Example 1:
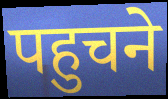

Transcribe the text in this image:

पहुचने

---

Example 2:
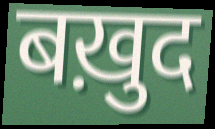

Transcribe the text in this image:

बख़ुद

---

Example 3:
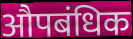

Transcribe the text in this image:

औपबंधिक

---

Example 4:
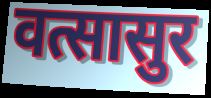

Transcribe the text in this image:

वत्सासुर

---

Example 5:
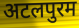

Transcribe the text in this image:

अटलपुरम